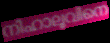
നിഹാലുവിനെ